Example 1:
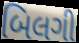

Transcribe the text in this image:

બિલગી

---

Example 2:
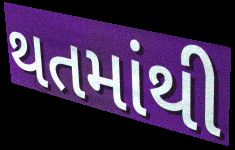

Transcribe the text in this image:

થતમાંથી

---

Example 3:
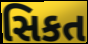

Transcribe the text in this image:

સિકત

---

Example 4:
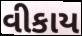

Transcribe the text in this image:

વીકાય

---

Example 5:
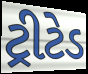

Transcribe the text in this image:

ટ્રીટેડ